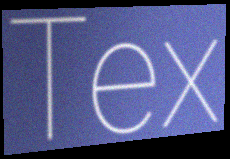
Tex